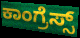
ಕಾಂಗ್ರೆಸ್ಸ್